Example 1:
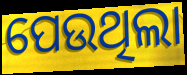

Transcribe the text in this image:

ପେଉଥିଲା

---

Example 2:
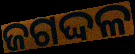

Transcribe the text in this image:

ଜଗଦ୍ଦଳ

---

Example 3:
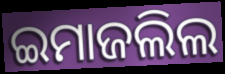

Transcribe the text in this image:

ଇମାଜଲିଲ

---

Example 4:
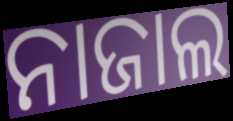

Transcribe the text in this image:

ନାଜାଲ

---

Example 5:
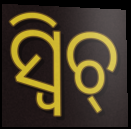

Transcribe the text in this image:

ସ୍ଵିଚ୍